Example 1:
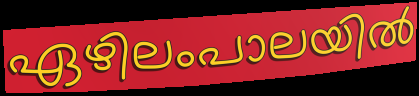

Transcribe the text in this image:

ഏഴിലംപാലയിൽ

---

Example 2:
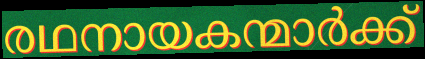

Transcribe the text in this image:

രഥനായകന്മാർക്ക്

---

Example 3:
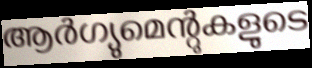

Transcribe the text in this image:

ആർഗ്യുമെന്റുകളുടെ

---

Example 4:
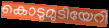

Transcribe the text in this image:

കൊടുമുടിയേറി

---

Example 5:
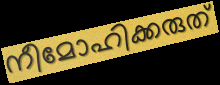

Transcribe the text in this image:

നീമോഹിക്കരുത്